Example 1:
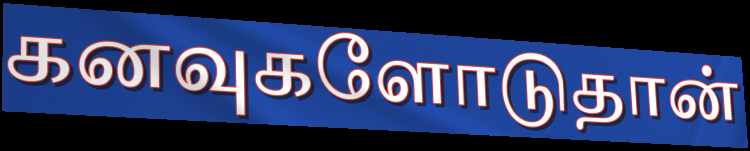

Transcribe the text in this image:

கனவுகளோடுதான்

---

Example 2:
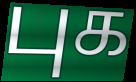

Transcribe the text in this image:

புக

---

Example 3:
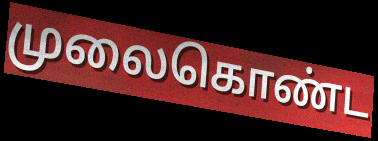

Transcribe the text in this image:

முலைகொண்ட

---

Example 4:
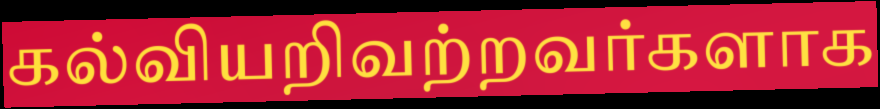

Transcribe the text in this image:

கல்வியறிவற்றவர்களாக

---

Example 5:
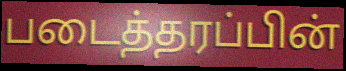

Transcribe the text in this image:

படைத்தரப்பின்